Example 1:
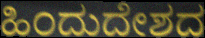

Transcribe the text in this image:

ಹಿಂದುದೇಶದ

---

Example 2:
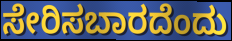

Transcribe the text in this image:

ಸೇರಿಸಬಾರದೆಂದು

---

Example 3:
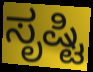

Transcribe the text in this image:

ಸೃಷ್ಟಿ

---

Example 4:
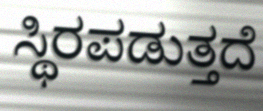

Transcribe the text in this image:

ಸ್ಥಿರಪಡುತ್ತದೆ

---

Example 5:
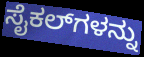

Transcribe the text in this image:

ಸೈಕಲ್‌ಗಳನ್ನು